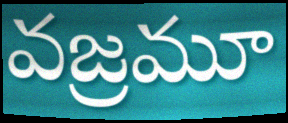
వజ్రమూ